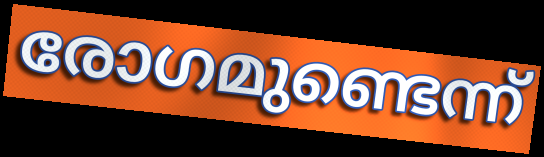
രോഗമുണ്ടെന്ന്